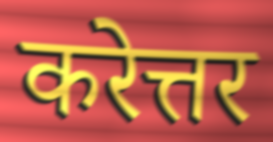
करेत्तर